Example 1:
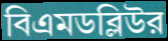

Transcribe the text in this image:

বিএমডব্লিউর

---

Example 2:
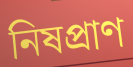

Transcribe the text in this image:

নিষপ্রাণ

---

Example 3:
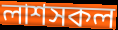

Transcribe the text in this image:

লাশসকল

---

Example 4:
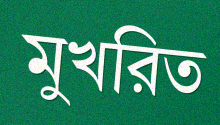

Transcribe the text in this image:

মুখরিত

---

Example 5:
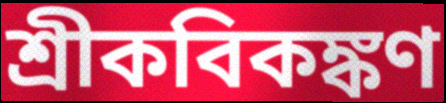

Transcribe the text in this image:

শ্রীকবিকঙ্কণ